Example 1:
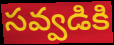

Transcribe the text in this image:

సవ్వడికి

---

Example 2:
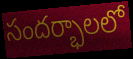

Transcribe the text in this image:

సందర్భాలలో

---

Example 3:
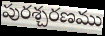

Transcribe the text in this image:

పురశ్చరణము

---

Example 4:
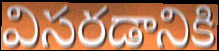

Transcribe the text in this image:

విసరడానికి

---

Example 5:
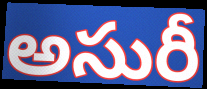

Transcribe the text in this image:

అసురీ